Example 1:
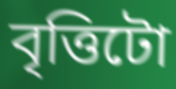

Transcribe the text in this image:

বৃত্তিটো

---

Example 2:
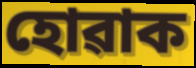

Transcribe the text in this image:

হোৱাক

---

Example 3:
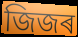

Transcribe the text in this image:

জিজৰ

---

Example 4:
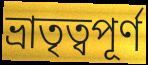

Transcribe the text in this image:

ভ্ৰাতৃত্বপূৰ্ণ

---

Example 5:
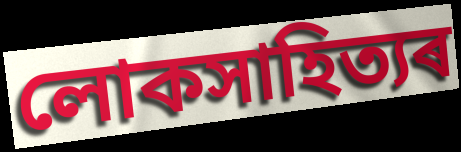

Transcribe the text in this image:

লোকসাহিত্যৰ